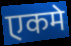
एकमे